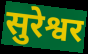
सुरेश्वर